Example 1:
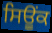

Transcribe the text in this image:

ਸਿਊਂਕ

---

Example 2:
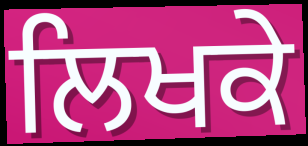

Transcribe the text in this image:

ਲਿਖਕੇ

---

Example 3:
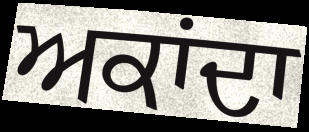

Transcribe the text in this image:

ਅਕਾਂਦਾ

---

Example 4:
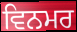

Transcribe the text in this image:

ਵਿਨਮਰ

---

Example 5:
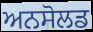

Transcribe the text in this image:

ਅਨਸੋਲਡ